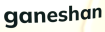
ganeshan